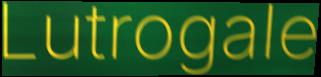
Lutrogale